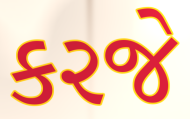
કરજે